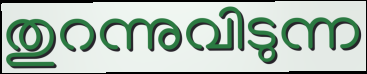
തുറന്നുവിടുന്ന